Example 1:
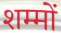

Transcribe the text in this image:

शम्मों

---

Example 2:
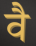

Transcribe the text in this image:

वै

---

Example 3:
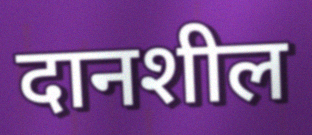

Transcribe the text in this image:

दानशील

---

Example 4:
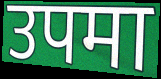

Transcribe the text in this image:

उपमा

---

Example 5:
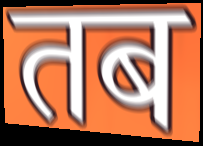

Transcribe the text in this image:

तब